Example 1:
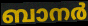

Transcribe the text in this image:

ബാനർ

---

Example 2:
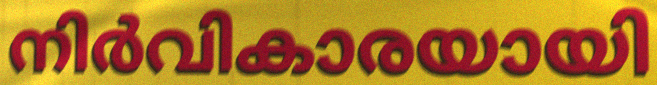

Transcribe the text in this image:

നിർവികാരയായി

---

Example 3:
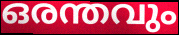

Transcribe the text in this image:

ഒരന്തവും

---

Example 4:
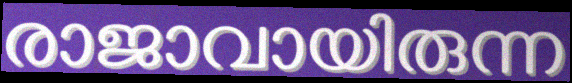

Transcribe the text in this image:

രാജാവായിരുന്ന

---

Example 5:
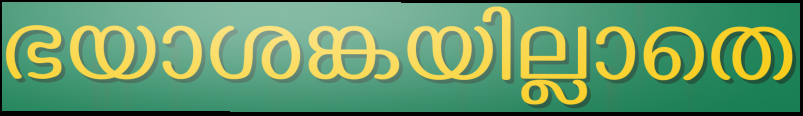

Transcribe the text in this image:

ഭയാശങ്കയില്ലാതെ